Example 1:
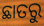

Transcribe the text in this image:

ଛାତରୁ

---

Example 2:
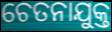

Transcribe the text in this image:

ଚେତନାଯୁକ୍ତ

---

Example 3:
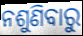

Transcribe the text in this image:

ନଶୁଣିବାରୁ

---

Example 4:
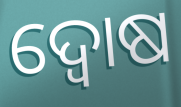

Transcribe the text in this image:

ଦ୍ୱୋଷ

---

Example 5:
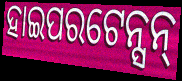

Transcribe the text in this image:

ହାଇପରଟେନ୍ସନ୍